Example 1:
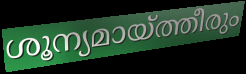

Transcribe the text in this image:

ശൂന്യമായ്ത്തീരും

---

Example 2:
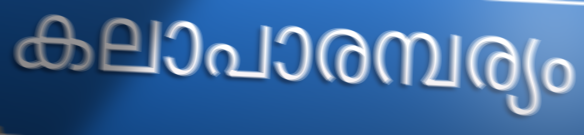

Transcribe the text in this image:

കലാപാരമ്പര്യം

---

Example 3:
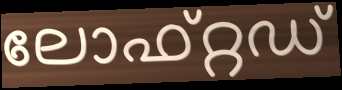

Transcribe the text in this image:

ലോഫ്റ്റഡ്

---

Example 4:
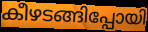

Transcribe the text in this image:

കീഴടങ്ങിപ്പോയി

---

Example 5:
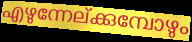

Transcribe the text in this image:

എഴുന്നേല്ക്കുമ്പോഴും